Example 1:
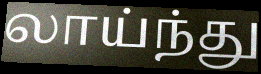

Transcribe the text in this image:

லாய்ந்து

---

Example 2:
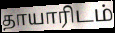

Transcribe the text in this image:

தாயாரிடம்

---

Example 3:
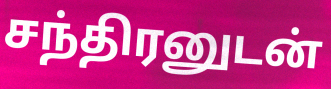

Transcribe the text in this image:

சந்திரனுடன்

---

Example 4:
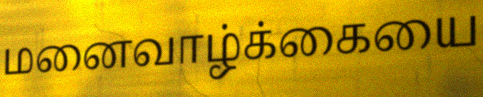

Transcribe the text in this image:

மனைவாழ்க்கையை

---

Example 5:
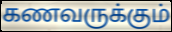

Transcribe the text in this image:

கணவருக்கும்